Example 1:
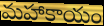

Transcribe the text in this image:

మహాకాయం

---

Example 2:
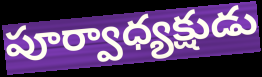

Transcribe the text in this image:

పూర్వాధ్యక్షుడు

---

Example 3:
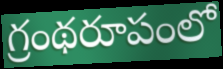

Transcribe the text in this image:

గ్రంథరూపంలో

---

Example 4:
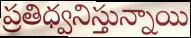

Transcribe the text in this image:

ప్రతిధ్వనిస్తున్నాయి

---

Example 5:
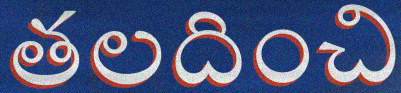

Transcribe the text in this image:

తలదించి